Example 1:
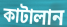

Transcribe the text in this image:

কাটালান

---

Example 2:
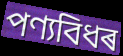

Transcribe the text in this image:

পণ্যবিধৰ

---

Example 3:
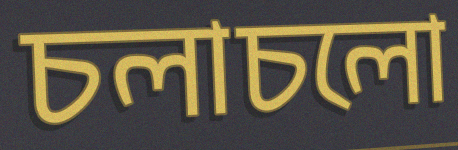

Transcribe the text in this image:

চলাচলো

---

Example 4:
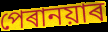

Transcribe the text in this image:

পেৰানয়াৰ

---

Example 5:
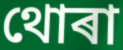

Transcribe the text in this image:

থোৰা